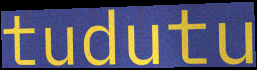
tudutu